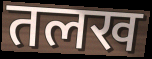
तलख